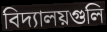
বিদ্যালয়গুলি